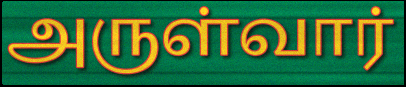
அருள்வார்